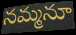
నమ్మనూ